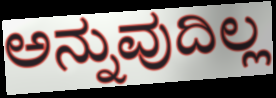
ಅನ್ನುವುದಿಲ್ಲ